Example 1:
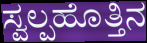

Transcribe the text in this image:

ಸ್ವಲ್ಪಹೊತ್ತಿನ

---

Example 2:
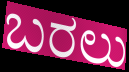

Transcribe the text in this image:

ಬರಲು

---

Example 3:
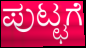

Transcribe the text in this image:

ಪುಟ್ಟಗೆ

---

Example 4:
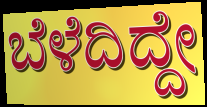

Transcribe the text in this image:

ಬೆಳೆದಿದ್ದೇ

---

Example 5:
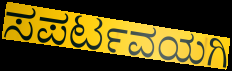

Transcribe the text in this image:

ಸಪರ್ಟವಯಗಿ